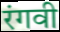
रंगवी